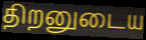
திறனுடைய